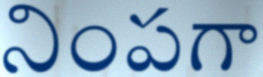
నింపగా